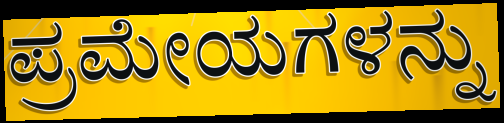
ಪ್ರಮೇಯಗಳನ್ನು